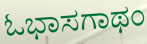
ಓಭಾಸಗಾಥಂ